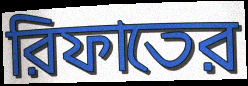
রিফাতের